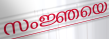
സംജ്ഞയെ